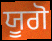
ਯੂਗੋ